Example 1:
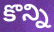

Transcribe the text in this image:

కొన్ని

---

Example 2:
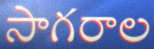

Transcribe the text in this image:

సాగరాల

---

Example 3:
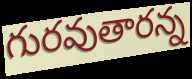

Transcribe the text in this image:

గురవుతారన్న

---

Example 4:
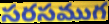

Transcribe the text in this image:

సరసముగ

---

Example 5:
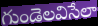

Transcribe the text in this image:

గుండెలవిసేలా